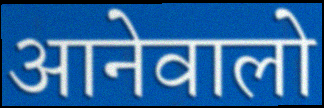
आनेवालो